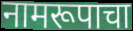
नामरूपाचा